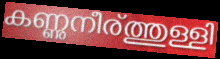
കണ്ണുനീര്ത്തുള്ളി